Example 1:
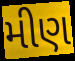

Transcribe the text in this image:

મીણ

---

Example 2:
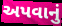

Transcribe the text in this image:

અપવાનું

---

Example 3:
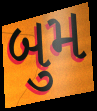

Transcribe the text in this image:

બુમ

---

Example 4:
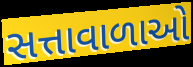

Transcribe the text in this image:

સત્તાવાળાઓ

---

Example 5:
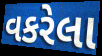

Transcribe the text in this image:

વકરેલા